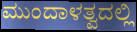
ಮುಂದಾಳತ್ವದಲ್ಲಿ